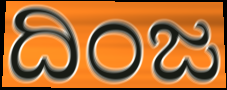
ದಿಂಜ